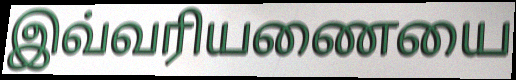
இவ்வரியணையை